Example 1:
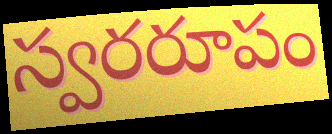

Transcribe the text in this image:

స్వరరూపం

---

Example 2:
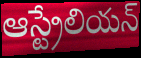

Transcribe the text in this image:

ఆస్ట్రేలియన్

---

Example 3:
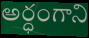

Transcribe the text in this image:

అర్ధంగాని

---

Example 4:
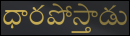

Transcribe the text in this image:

ధారపోస్తాడు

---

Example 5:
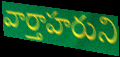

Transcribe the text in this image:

వార్తాహరుని